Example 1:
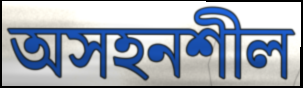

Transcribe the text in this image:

অসহনশীল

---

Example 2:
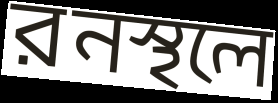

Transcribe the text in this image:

রনস্থলে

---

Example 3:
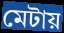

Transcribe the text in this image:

মেটায়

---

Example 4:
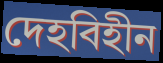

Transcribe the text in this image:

দেহবিহীন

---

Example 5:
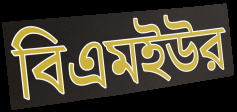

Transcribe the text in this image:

বিএমইউর